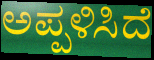
ಅಪ್ಪಳಿಸಿದೆ